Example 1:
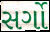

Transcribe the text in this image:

સર્ગો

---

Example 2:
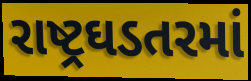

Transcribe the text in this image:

રાષ્ટ્રઘડતરમાં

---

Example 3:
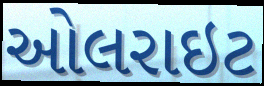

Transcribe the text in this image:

ઓલરાઇટ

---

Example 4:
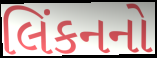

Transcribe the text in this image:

લિંકનનો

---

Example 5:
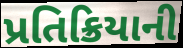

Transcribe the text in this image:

પ્રતિક્રિયાની